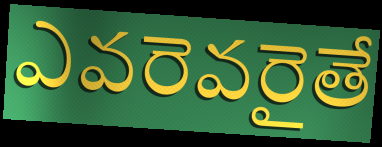
ఎవరెవరైతే